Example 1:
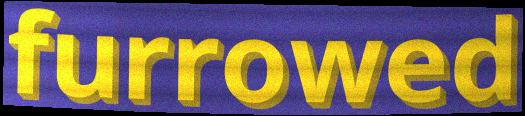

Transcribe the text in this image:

furrowed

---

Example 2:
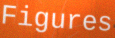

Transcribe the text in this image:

Figures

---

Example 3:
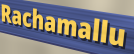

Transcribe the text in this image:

Rachamallu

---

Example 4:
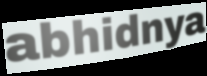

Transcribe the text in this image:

abhidnya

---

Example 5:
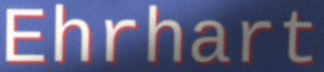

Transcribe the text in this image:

Ehrhart